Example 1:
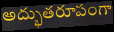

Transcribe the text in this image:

అద్భుతరూపంగా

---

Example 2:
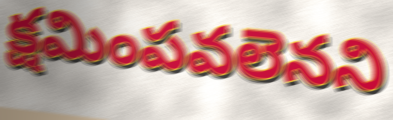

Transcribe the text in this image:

క్షమింపవలెనని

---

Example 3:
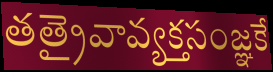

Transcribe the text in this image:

తత్రైవావ్యక్తసంజ్ఞకే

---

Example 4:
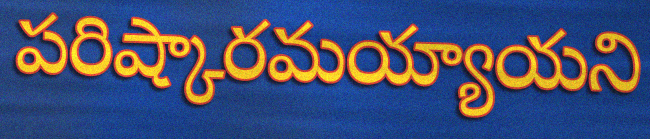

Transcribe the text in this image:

పరిష్కారమయ్యాయని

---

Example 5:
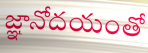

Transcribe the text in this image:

జ్ఞానోదయంతో